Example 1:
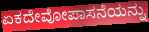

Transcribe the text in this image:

ಏಕದೇವೋಪಾಸನೆಯನ್ನು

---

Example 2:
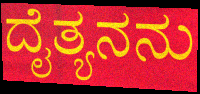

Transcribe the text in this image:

ದೈತ್ಯನನು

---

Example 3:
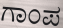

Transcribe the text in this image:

ಗಾಂಪ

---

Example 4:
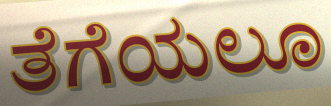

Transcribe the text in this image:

ತೆಗೆಯಲೂ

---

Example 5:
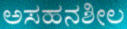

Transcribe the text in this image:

ಅಸಹನಶೀಲ